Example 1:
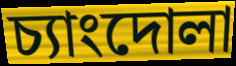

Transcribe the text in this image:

চ্যাংদোলা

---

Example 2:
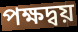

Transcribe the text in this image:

পক্ষদ্বয়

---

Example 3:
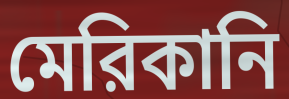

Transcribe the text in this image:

মেরিকানি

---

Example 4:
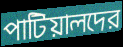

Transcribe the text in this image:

পাটিয়ালদের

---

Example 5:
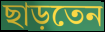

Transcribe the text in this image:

ছাড়তেন